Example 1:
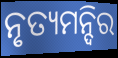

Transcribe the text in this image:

ନୃତ୍ୟମନ୍ଦିର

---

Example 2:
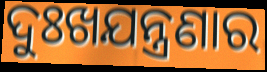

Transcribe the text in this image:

ଦୁଃଖଯନ୍ତ୍ରଣାର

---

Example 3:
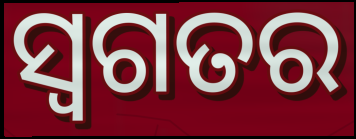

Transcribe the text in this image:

ସ୍ୱଗତର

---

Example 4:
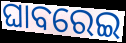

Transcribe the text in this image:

ଘାବରେଇ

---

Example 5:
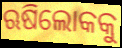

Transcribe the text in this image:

ଋଷିଲୋକକୁ